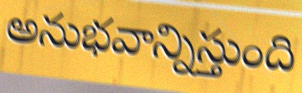
అనుభవాన్నిస్తుంది